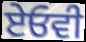
ਏਓਵੀ